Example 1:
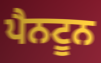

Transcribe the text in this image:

ਪੈਨਟੂਨ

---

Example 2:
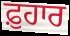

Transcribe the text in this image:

ਫ਼ੁਹਾਰ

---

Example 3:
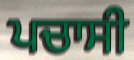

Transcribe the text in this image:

ਪਚਾਸੀ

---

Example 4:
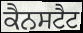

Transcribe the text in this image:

ਕੈਨਸਟੈਟ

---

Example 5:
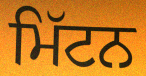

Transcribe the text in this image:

ਮਿੱਟਨ